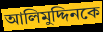
আলিমুদ্দিনকে